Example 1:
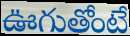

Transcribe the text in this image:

ఊగుతోంటే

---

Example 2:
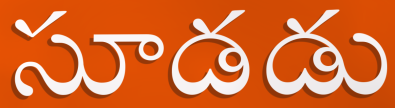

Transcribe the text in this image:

సూడడు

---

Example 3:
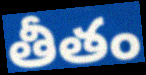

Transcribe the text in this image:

తీతం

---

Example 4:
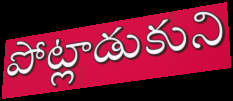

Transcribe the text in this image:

పోట్లాడుకుని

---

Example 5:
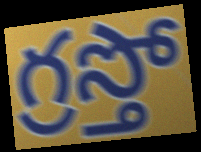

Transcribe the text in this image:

గ్రస్తో